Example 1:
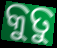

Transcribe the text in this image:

କୁତୁ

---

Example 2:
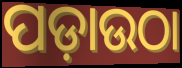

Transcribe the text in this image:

ପଡ଼ାଉଠା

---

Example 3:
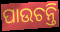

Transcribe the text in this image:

ପାଉଚନ୍ତି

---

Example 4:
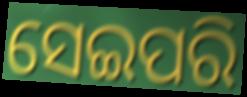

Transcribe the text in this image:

ସେଇପରି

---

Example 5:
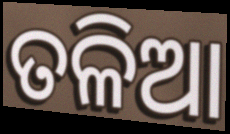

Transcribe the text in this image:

ତଳିଆ